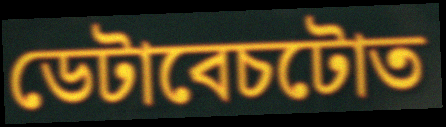
ডেটাবেচটোত